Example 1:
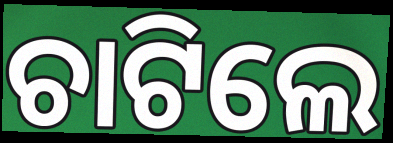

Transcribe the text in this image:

ଚାଟିଲେ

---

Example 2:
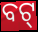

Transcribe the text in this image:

ବଟ୍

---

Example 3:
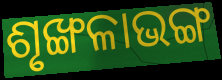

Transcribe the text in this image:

ଶୃଙ୍ଖଳାଭଙ୍ଗ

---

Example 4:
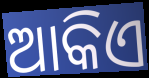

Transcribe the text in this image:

ଆକିଏ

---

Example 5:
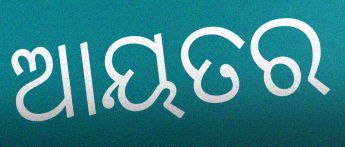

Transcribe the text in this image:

ଆୟତର